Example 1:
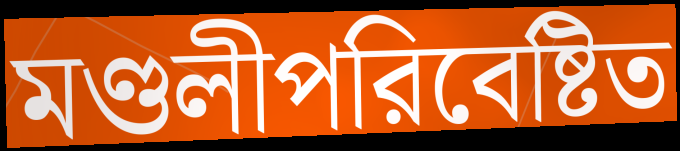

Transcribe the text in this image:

মণ্ডলীপরিবেষ্টিত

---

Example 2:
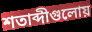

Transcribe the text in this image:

শতাব্দীগুলোয়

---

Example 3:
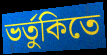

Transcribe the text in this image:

ভর্তুকিতে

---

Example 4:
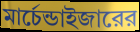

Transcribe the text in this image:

মার্চেন্ডাইজারের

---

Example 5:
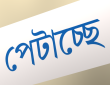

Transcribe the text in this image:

পেটাচ্ছে